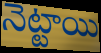
నెట్టాయి